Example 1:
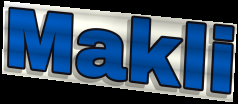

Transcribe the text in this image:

Makli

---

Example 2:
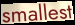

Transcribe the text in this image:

smallest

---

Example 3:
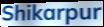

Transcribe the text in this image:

Shikarpur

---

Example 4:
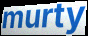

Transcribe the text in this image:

murty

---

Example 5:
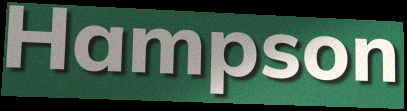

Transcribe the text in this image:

Hampson